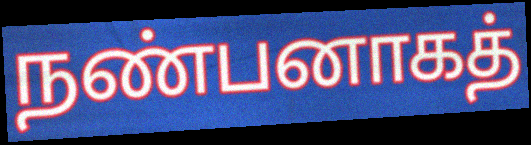
நண்பனாகத்